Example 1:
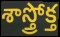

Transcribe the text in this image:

శాస్త్రోక్త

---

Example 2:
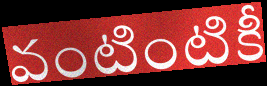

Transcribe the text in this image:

వంటింటికీ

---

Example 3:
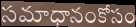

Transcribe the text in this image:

సమాధానంకోసం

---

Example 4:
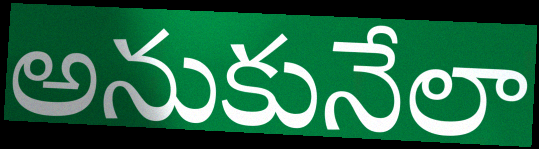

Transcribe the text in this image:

అనుకునేలా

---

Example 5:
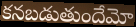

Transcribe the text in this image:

కనబడుతుందేమో